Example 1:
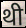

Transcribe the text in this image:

थी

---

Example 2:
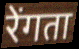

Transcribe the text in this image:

रेंगता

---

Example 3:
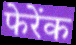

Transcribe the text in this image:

फेरेंक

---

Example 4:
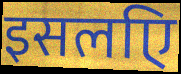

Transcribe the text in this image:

इसलएि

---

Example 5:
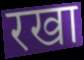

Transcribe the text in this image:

रखा